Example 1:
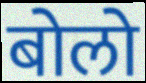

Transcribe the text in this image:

बोलो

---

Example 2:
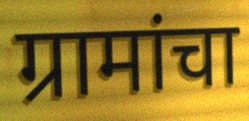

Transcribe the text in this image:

ग्रामांचा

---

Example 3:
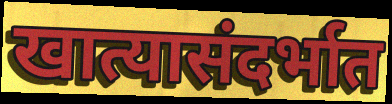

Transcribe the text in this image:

खात्यासंदर्भात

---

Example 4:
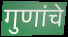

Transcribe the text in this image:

गुणांचे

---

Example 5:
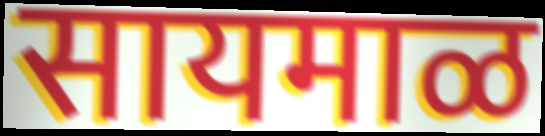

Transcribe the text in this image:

सायमाळ